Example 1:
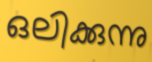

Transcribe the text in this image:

ഒലിക്കുന്നു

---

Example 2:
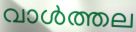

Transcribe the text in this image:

വാൾത്തല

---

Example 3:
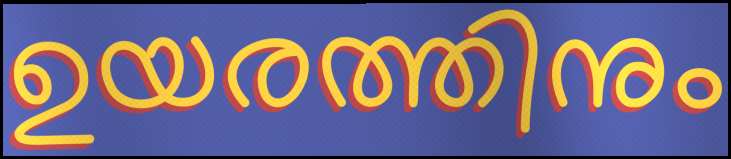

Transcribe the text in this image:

ഉയരത്തിനും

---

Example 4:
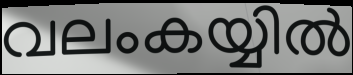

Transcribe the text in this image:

വലംകയ്യിൽ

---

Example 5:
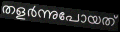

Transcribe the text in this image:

തളർന്നുപോയത്